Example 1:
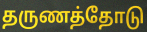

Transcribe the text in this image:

தருணத்தோடு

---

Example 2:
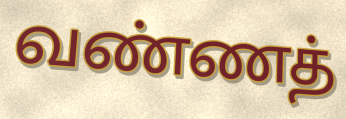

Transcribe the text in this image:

வண்ணத்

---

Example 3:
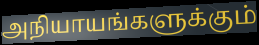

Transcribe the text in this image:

அநியாயங்களுக்கும்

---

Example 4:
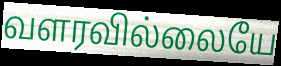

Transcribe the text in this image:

வளரவில்லையே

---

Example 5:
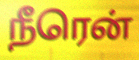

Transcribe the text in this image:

நீரென்